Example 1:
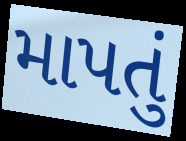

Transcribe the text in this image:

માપતું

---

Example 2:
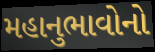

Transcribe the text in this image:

મહાનુભાવોનો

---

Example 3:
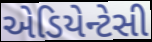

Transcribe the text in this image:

એડિયેન્ટેસી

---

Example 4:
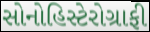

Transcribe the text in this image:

સોનોહિસ્ટેરોગ્રાફી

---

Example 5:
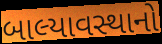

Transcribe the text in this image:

બાલ્યાવસ્થાનો